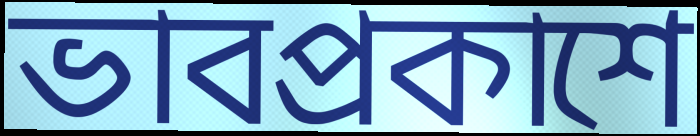
ভাবপ্রকাশে